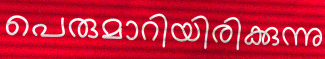
പെരുമാറിയിരിക്കുന്നു